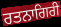
ਰਤਨਾਗਿਰੀ